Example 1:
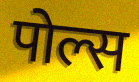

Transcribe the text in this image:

पोल्‍स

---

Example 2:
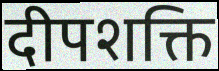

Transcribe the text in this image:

दीपशक्ति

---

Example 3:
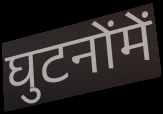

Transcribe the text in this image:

घुटनोंमें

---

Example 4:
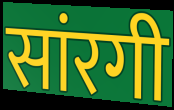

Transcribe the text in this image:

सांरगी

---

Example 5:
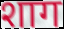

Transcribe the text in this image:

शाग